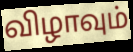
விழாவும்